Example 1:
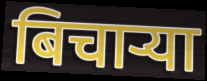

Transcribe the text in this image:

बिचाऱ्या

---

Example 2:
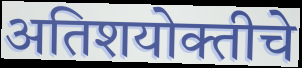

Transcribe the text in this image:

अतिशयोक्तीचे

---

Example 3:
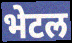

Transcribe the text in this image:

भेटल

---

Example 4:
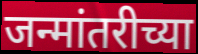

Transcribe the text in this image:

जन्मांतरीच्या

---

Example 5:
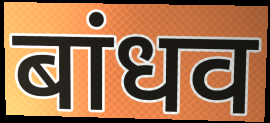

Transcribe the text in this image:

बांधव